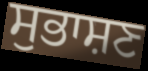
ਸੁਭਾਸ਼ਣ